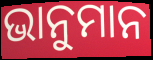
ଭାନୁମାନ